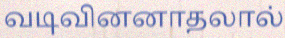
வடிவினனாதலால்